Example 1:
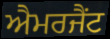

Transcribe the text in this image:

ਐਮਰਜੈਂਟ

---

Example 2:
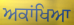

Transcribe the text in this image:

ਅਕਾਂਖਿਆ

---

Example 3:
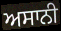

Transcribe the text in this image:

ਅਸਾਨੀ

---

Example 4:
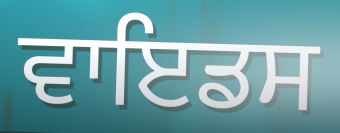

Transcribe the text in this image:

ਵਾਇਡਸ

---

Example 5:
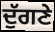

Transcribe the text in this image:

ਦੁੱਗਣੇ